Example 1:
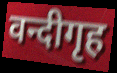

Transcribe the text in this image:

वन्दीगृह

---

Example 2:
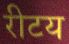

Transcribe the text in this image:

रीटय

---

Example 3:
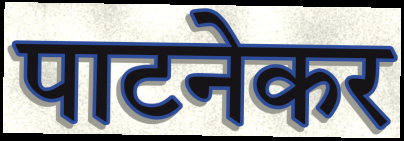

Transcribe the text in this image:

पाटनेकर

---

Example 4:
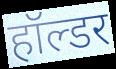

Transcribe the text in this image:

हॉल्डर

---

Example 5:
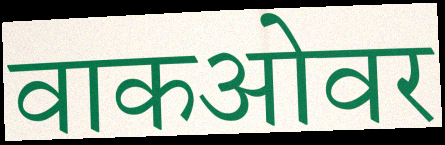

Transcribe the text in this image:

वाकओवर